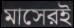
মাসেরই